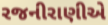
રજનીરાણીએ